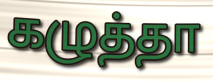
கழுத்தா